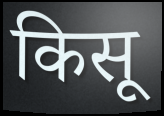
किसू